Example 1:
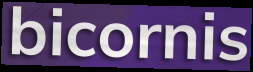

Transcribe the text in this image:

bicornis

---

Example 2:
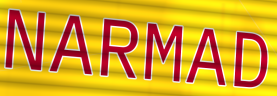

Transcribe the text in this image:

NARMAD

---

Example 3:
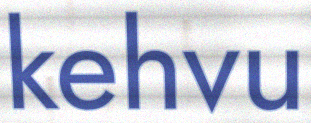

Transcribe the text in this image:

kehvu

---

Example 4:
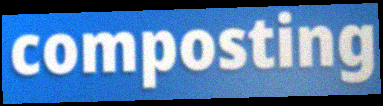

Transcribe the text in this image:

composting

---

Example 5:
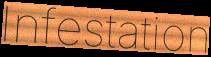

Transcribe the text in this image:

Infestation